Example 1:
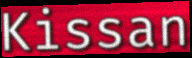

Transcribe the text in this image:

Kissan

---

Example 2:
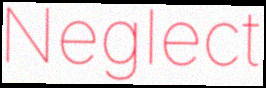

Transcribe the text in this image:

Neglect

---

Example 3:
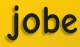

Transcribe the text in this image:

jobe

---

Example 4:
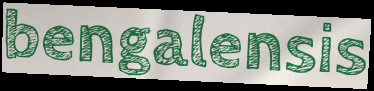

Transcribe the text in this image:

bengalensis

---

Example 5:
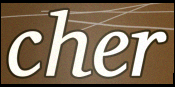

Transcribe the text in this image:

cher